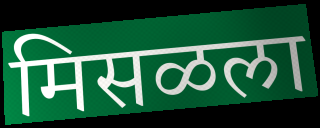
मिसळला